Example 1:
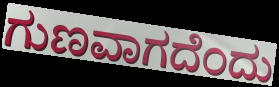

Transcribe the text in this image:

ಗುಣವಾಗದೆಂದು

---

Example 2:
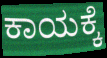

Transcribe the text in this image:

ಕಾಯಕ್ಕೆ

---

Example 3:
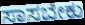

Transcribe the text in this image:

ಸಾಸಬೇಕು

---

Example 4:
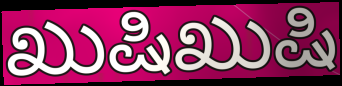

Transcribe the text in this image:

ಖುಷಿಖುಷಿ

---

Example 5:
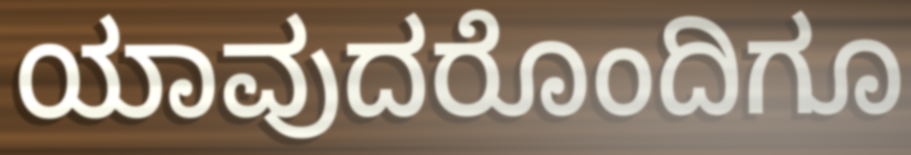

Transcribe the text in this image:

ಯಾವುದರೊಂದಿಗೂ